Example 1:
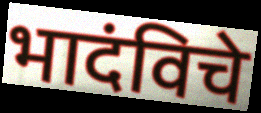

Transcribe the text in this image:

भादंविचे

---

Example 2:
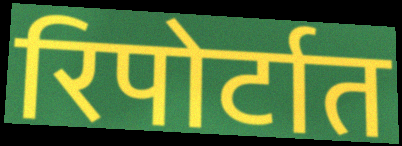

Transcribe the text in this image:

रिपोर्टात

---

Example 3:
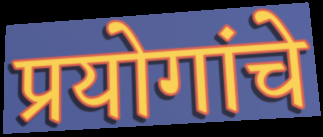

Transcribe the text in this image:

प्रयोगांचे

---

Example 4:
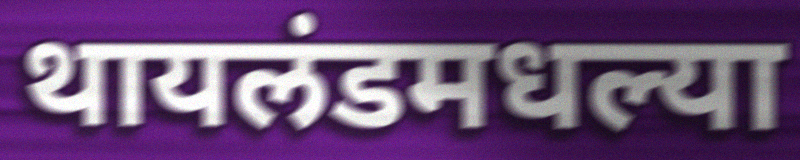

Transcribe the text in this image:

थायलंडमधल्या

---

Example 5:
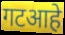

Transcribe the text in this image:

गटआहे